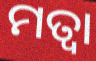
ମତ୍ୱା